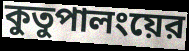
কুতুপালংয়ের